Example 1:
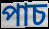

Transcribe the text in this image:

পাচ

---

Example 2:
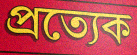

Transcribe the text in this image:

প্ৰত্যেক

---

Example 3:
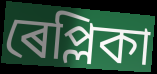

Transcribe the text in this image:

ৰেপ্লিকা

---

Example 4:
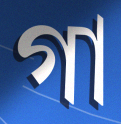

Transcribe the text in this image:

গা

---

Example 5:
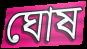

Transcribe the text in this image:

ঘোষ